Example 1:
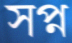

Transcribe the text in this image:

সপ্ন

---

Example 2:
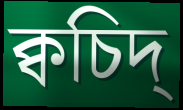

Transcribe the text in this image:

ক্বচিদ্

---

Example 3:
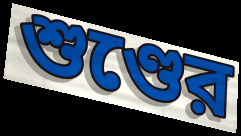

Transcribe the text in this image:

শুণ্ডের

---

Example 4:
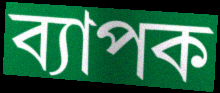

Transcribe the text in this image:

ব্যাপক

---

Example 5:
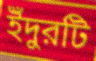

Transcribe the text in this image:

ইঁদুরটি